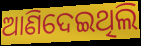
ଆଣିଦେଇଥିଲି